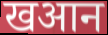
खआन